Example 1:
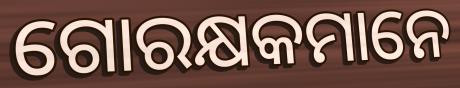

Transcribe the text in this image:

ଗୋରକ୍ଷକମାନେ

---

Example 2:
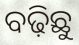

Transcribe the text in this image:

ବଢ଼ିଛୁ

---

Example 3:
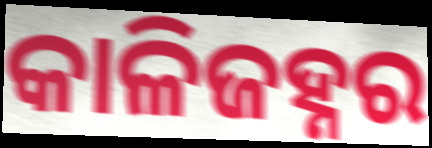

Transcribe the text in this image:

କାଳିଜହ୍ନର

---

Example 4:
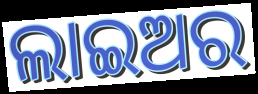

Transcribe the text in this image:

ଲାଇଅର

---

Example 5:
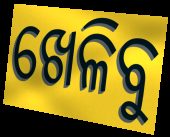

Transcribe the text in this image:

ଖେଳିବୁ